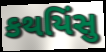
કથયિંસુ